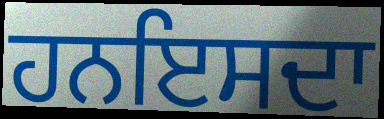
ਹਨਇਸਦਾ